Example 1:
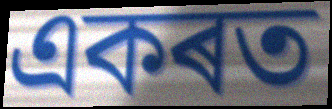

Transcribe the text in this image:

একৰত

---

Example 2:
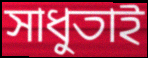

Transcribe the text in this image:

সাধুতাই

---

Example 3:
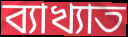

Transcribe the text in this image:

ব্যাখ্যাত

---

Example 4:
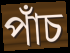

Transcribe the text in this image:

পাঁচ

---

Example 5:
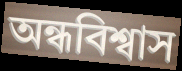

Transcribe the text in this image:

অন্ধবিশ্বাস